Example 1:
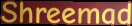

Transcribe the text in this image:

Shreemad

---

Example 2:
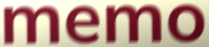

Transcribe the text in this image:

memo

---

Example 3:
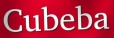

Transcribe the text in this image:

Cubeba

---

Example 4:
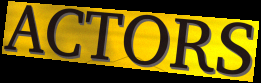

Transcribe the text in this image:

ACTORS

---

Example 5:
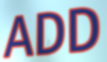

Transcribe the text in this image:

ADD